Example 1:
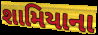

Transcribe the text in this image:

શામિયાના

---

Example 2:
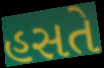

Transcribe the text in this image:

હસતે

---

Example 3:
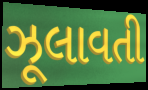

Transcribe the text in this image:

ઝૂલાવતી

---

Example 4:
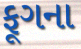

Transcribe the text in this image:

ફૂગના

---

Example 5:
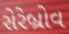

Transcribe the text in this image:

સેરેબ્રોવ